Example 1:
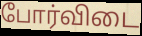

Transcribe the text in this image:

போர்விடை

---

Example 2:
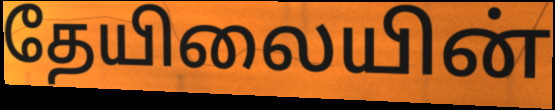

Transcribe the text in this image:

தேயிலையின்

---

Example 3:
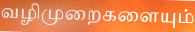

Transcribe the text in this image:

வழிமுறைகளையும்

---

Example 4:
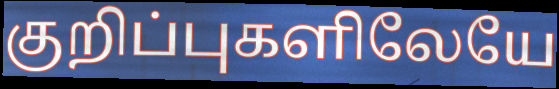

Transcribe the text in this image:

குறிப்புகளிலேயே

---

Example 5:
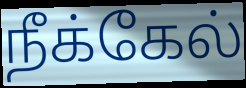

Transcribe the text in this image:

நீக்கேல்